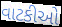
વાટકીઓ